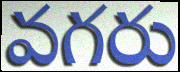
వగరు